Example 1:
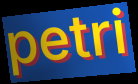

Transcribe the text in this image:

petri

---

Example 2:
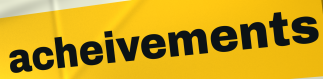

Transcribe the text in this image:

acheivements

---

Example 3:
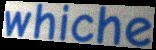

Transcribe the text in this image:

whiche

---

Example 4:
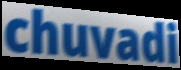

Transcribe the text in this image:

chuvadi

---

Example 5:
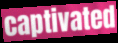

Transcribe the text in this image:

captivated